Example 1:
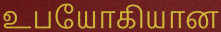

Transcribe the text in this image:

உபயோகியான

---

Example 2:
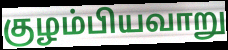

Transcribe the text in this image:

குழம்பியவாறு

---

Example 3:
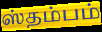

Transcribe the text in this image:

ஸ்தம்பம்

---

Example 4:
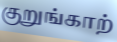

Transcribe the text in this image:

குறுங்காற்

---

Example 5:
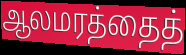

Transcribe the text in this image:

ஆலமரத்தைத்